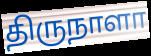
திருநாளா